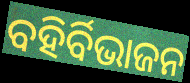
ବହିର୍ବିଭାଜନ